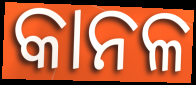
କାନଳ